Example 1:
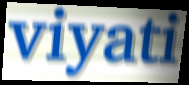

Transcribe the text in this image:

viyati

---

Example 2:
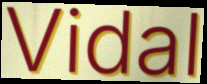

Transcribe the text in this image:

Vidal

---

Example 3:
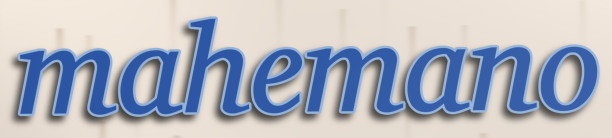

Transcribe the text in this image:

mahemano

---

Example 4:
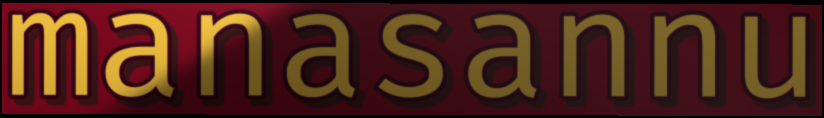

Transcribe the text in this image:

manasannu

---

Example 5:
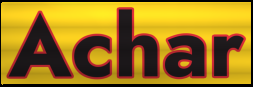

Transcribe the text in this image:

Achar